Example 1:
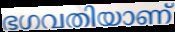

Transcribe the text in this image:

ഭഗവതിയാണ്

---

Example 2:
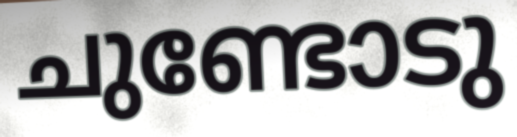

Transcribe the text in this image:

ചുണ്ടോടു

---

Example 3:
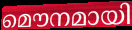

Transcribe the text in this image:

മൌനമായി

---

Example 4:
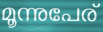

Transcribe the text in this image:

മൂന്നുപേര്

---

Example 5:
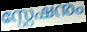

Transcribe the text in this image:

സ്റ്റേഷനും